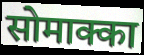
सोमाक्का